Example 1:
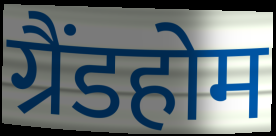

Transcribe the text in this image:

ग्रैंडहोम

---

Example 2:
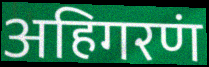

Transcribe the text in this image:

अहिगरणं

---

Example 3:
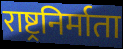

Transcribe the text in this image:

राष्ट्रनिर्माता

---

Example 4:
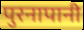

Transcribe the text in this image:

पुरनापानी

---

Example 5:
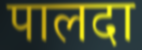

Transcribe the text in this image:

पालदा